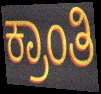
ಕ್ರಾಂತಿ